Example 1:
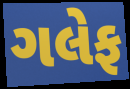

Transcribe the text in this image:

ગલેફ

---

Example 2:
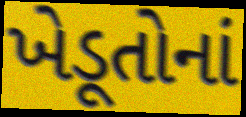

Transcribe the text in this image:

ખેડૂતોનાં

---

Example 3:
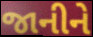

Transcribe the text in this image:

જાનીને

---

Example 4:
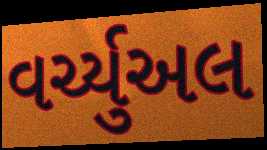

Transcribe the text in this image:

વર્ચ્યુઅલ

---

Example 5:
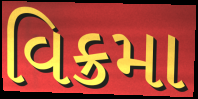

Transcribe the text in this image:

વિક્રમા